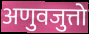
अणुवजुत्तो